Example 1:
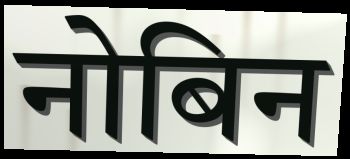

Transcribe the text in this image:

नोबिन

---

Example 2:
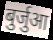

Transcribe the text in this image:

बुर्जुआ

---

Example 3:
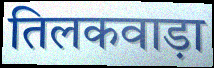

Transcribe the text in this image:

तिलकवाड़ा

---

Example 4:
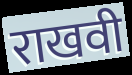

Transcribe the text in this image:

राखवी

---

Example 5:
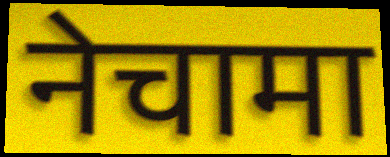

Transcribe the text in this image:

नेचामा